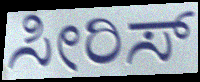
ಸೀರಿಸ್